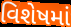
વિશેષમાં